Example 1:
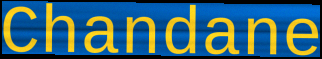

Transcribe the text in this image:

Chandane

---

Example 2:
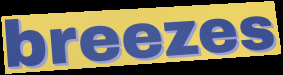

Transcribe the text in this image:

breezes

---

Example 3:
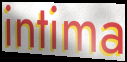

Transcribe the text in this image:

intima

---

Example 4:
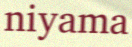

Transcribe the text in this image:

niyama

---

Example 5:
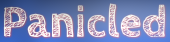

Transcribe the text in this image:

Panicled